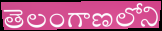
తెలంగాణలోని